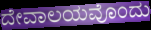
ದೇವಾಲಯವೊಂದು